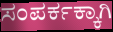
ಸಂಪರ್ಕಕ್ಕಾಗಿ